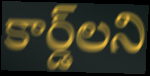
కార్డ్‌లని